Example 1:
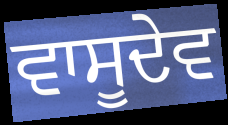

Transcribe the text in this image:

ਵਾਸੂਦੇਵ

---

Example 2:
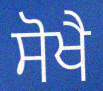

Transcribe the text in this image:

ਸੋਖੈ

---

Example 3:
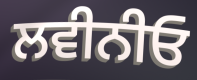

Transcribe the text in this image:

ਲਵੀਨੀਓ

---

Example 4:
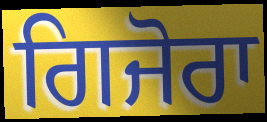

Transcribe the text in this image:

ਗਿਜੋਰਾ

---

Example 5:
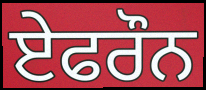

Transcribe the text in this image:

ਏਫਰੌਨ